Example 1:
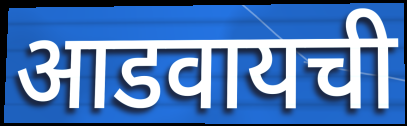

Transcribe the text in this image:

आडवायची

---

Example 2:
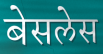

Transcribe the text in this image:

बेसलेस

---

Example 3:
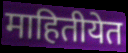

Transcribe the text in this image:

माहितीयेत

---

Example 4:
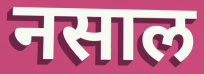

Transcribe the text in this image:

नसाल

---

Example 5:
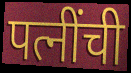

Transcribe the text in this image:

पत्नींची